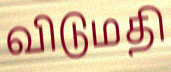
விடுமதி